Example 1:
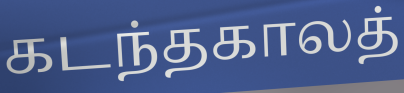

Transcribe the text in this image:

கடந்தகாலத்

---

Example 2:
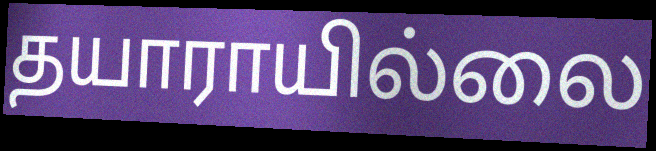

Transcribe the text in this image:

தயாராயில்லை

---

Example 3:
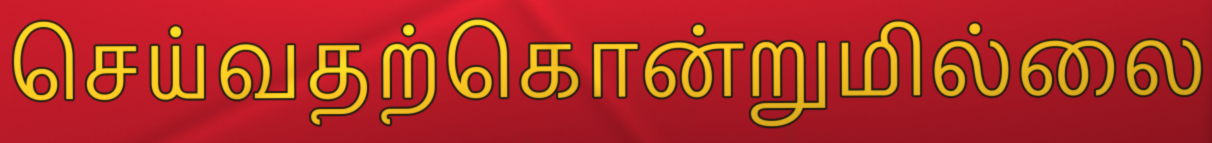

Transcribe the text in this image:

செய்வதற்கொன்றுமில்லை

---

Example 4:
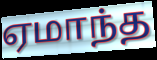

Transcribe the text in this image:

ஏமாந்த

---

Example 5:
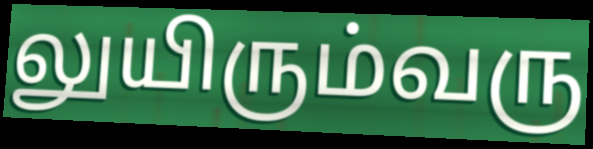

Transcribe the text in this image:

லுயிரும்வரு